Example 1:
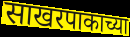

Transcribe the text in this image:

साखरपाकाच्या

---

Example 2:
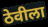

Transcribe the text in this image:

ठेवीला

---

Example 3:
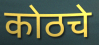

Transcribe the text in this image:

कोठचे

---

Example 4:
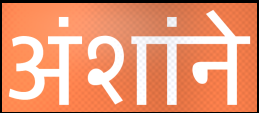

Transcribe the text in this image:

अंशांने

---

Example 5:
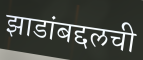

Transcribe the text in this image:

झाडांबद्दलची